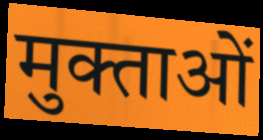
मुक्ताओं